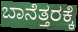
ಬಾನೆತ್ತರಕ್ಕೆ